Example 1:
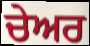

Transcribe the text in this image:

ਚੇਅਰ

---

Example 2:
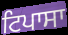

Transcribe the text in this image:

ਟਿਪਾਸਾ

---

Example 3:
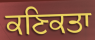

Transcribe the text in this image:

ਕਣਿਕਤਾ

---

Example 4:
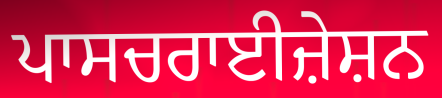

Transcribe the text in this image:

ਪਾਸਚਰਾਈਜ਼ੇਸ਼ਨ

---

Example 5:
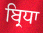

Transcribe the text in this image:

ਬ੍ਰਿਧਾ